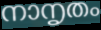
നാനൃതം